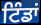
ਟਿੰਡਾਂ